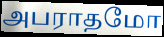
அபராதமோ